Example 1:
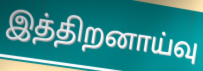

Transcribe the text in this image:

இத்திறனாய்வு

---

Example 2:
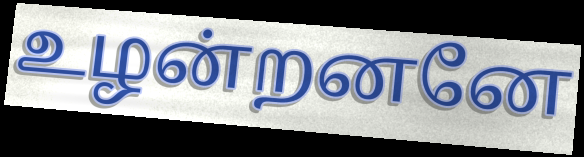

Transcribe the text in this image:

உழன்றனனே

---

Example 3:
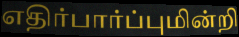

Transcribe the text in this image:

எதிர்பார்ப்புமின்றி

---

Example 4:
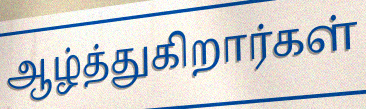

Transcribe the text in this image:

ஆழ்த்துகிறார்கள்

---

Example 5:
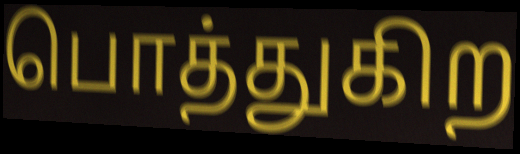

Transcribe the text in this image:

பொத்துகிற